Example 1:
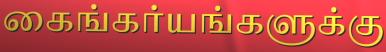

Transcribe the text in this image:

கைங்கர்யங்களுக்கு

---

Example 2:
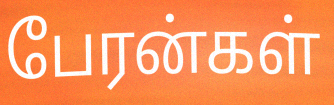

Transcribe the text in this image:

பேரன்கள்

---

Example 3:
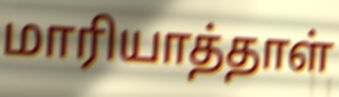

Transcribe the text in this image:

மாரியாத்தாள்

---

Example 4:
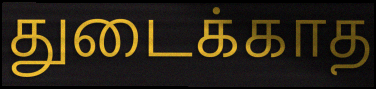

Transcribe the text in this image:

துடைக்காத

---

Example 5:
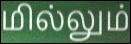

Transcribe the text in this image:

மில்லும்